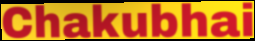
Chakubhai